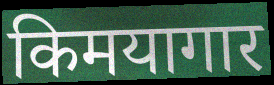
किमयागार